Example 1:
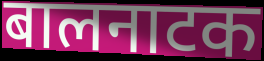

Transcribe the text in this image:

बालनाटक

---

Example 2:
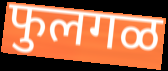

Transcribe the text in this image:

फुलगळ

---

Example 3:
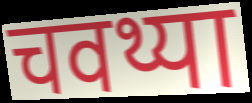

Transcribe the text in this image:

चवथ्या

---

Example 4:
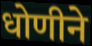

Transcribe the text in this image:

धोणीने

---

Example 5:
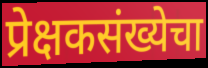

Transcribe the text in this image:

प्रेक्षकसंख्येचा